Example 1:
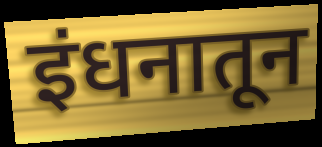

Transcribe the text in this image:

इंधनातून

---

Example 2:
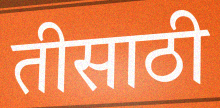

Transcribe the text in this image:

तीसाठी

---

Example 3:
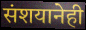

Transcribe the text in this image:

संशयानेही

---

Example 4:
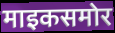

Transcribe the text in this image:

माइकसमोर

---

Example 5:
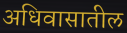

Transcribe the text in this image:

अधिवासातील